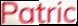
Patric